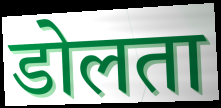
डोलता